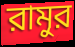
রামুর